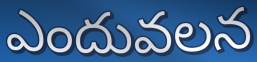
ఎందువలన